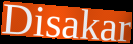
Disakar